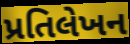
પ્રતિલેખન